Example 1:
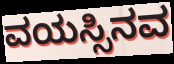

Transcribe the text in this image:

ವಯಸ್ಸಿನವ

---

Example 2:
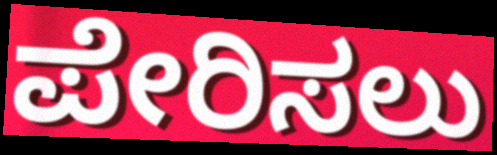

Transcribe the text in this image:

ಪೇರಿಸಲು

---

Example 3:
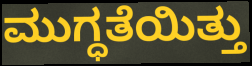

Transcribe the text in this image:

ಮುಗ್ಧತೆಯಿತ್ತು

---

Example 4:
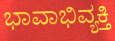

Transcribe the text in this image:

ಭಾವಾಭಿವ್ಯಕ್ತಿ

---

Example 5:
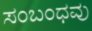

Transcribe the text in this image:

ಸಂಬಂಧವು